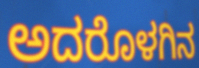
ಅದರೊಳಗಿನ